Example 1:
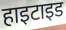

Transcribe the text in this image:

हाइटाइड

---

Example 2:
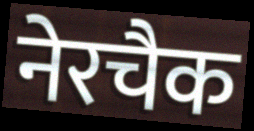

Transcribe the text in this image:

नेरचैक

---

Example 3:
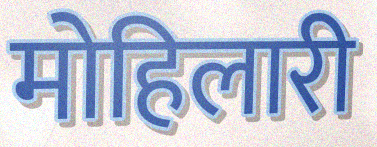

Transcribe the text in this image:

मोहिलारी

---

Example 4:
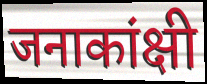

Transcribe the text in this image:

जनाकांक्षी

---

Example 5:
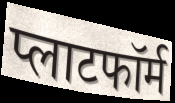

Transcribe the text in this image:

प्लाटफॉर्म